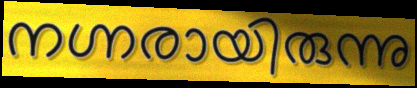
നഗ്നരായിരുന്നു